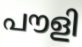
പൗളി